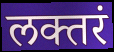
लक्तरं